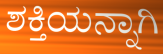
ಶಕ್ತಿಯನ್ನಾಗಿ